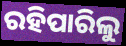
ରହିପାରିଲୁ